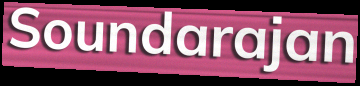
Soundarajan